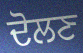
ਦੋਲਣ